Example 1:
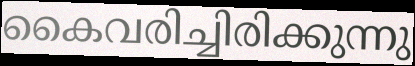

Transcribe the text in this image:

കൈവരിച്ചിരിക്കുന്നു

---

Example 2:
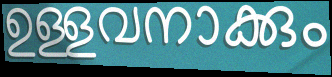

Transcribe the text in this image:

ഉള്ളവനാക്കും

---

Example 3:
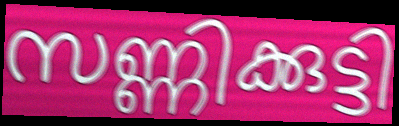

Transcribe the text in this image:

സണ്ണിക്കുട്ടി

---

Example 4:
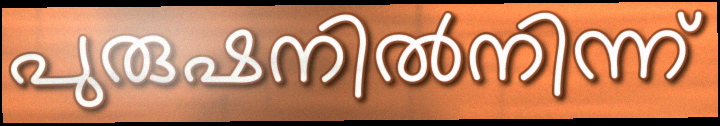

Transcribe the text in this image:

പുരുഷനിൽനിന്ന്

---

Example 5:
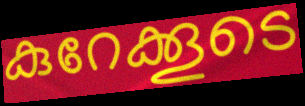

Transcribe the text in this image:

കുറേക്കൂടെ